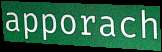
apporach